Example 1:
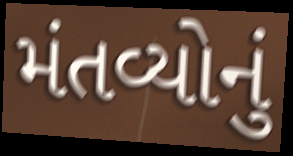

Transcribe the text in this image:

મંતવ્યોનું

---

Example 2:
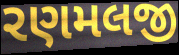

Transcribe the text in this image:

રણમલજી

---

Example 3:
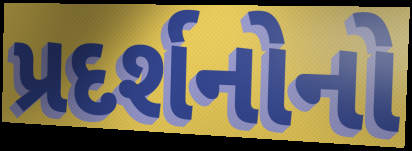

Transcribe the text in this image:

પ્રદર્શનોનો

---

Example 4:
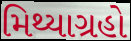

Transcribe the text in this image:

મિથ્યાગ્રહો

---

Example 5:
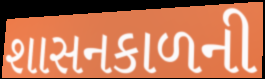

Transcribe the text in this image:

શાસનકાળની